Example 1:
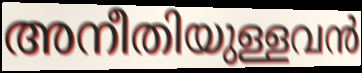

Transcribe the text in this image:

അനീതിയുള്ളവൻ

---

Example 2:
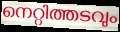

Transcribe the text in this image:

നെറ്റിത്തടവും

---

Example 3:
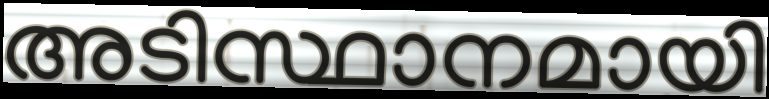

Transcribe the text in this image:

അടിസ്ഥാനമായി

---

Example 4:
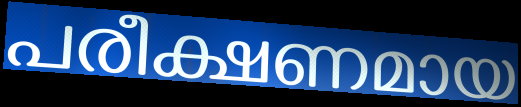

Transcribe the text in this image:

പരീക്ഷണമായ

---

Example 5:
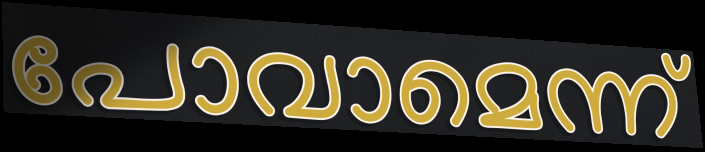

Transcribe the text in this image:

പോവാമെന്ന്